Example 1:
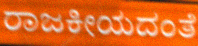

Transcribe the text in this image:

ರಾಜಕೀಯದಂತೆ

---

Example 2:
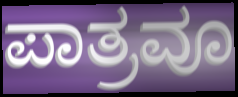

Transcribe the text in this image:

ಪಾತ್ರವೂ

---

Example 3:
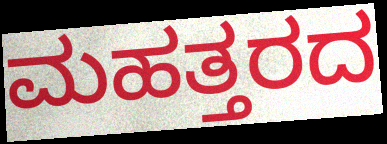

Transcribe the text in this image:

ಮಹತ್ತರದ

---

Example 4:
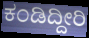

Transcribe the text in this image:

ಕಂಡಿದ್ದೀರಿ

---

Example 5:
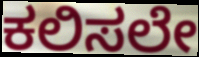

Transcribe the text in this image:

ಕಲಿಸಲೇ